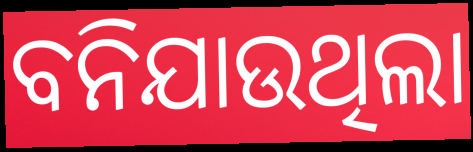
ବନିଯାଉଥିଲା